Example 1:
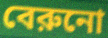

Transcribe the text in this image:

বেরুনো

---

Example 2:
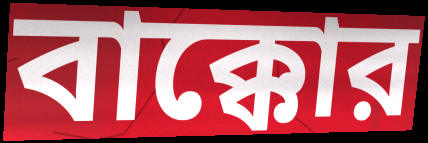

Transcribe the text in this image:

বাক্কোর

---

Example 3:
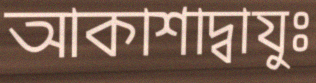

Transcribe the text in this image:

আকাশাদ্বাযুঃ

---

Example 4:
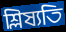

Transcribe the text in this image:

শ্লিষ্যতি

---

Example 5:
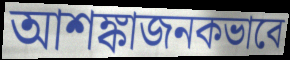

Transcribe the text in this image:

আশঙ্কাজনকভাবে